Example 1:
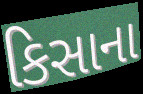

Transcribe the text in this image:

કિસાના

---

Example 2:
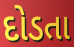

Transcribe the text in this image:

દોડતા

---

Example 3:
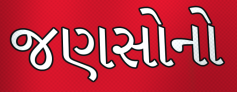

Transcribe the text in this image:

જણસોનો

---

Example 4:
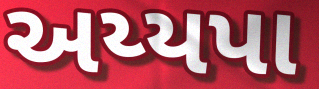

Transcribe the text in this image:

અય્યપા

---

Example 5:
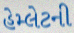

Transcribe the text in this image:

હેમ્લેટની